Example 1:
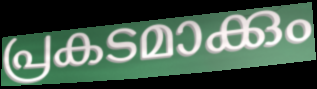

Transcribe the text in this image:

പ്രകടമാക്കും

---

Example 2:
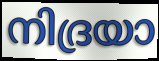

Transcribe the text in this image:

നിദ്രയാ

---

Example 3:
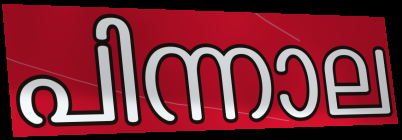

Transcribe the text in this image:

പിന്നാല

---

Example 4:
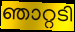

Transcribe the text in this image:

ഞാറ്റടി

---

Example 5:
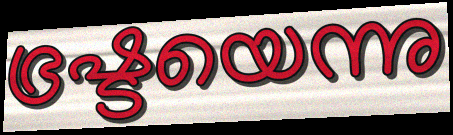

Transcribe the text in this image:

ഭ്രഷ്ടയെന്നു